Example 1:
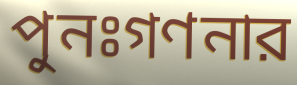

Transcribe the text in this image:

পুনঃগণনার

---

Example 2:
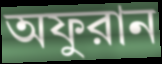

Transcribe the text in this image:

অফুরান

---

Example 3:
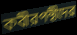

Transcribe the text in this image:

কবীরপন্থীদের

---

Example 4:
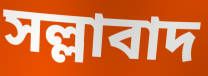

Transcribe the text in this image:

সল্লাবাদ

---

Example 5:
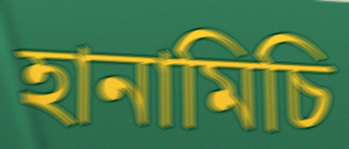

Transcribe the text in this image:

হানামিচি